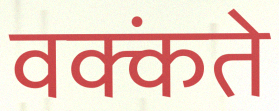
वक्कंते